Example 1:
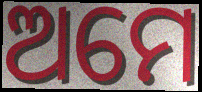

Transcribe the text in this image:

ଅମେ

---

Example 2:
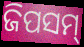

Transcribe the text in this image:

ଜିପସମ୍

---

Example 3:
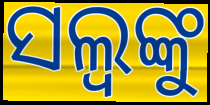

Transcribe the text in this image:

ସଲ୍ୱଙ୍କୁ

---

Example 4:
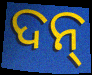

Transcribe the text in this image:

ଦନ୍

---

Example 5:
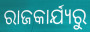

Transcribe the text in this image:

ରାଜକାର୍ଯ୍ୟରୁ